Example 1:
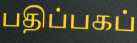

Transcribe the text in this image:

பதிப்பகப்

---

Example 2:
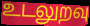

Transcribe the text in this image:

உடலுறவு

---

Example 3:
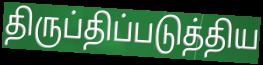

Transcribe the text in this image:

திருப்திப்படுத்திய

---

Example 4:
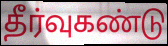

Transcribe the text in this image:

தீர்வுகண்டு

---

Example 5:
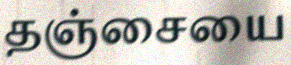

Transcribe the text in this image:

தஞ்சையை